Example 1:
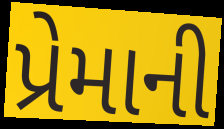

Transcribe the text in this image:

પ્રેમાની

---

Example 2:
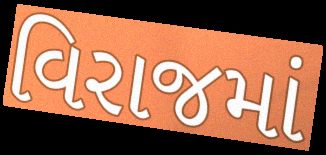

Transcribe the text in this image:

વિરાજમાં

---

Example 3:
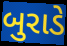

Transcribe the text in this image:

બુરાડે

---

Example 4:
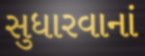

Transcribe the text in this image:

સુધારવાનાં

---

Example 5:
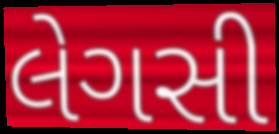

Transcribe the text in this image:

લેગસી